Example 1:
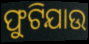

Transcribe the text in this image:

ଫୁଟିଯାଉ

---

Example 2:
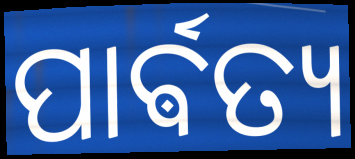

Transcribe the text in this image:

ପାର୍ଵତ୍ଯ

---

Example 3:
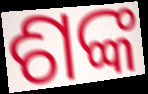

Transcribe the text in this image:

ଶଙ୍କ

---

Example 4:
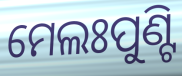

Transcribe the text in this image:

ମେଲଃପୁଣ୍ଟି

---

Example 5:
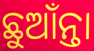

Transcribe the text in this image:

ଛୁଆଁନ୍ତା